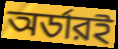
অর্ডারই